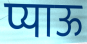
प्याऊ